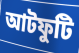
আটফুটি